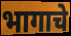
भागाचे